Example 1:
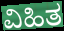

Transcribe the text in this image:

ವಿಹಿತ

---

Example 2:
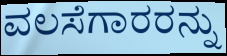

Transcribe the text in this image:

ವಲಸೆಗಾರರನ್ನು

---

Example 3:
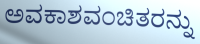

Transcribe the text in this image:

ಅವಕಾಶವಂಚಿತರನ್ನು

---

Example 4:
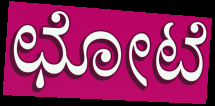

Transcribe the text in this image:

ಛೋಟೆ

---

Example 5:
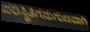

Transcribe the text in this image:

ಪರಿಸ್ಥಿತಿಗನುಗುಣವಾಗಿ